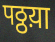
पठ्ठय़ा